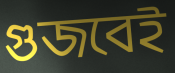
গুজবেই